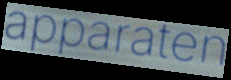
apparaten